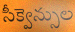
సీక్వెన్సుల